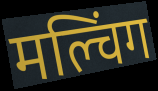
मल्चिंग